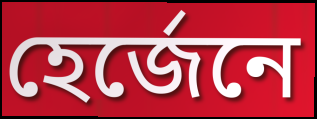
হেৰ্জেনে